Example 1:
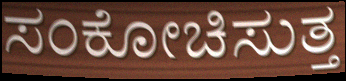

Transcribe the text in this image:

ಸಂಕೋಚಿಸುತ್ತ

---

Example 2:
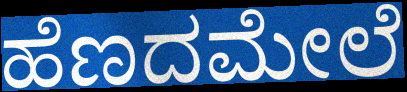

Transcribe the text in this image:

ಹೆಣದಮೇಲೆ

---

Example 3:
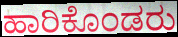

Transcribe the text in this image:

ಹಾರಿಕೊಂಡರು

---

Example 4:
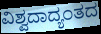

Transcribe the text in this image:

ವಿಶ್ವದಾದ್ಯಂತದ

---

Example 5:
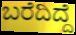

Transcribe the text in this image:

ಬರೆದಿದ್ದೆ